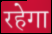
रहेगा